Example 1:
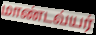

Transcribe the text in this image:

மாண்டவ்யர்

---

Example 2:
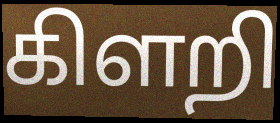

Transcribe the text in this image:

கிளறி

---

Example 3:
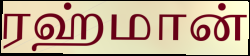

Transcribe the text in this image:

ரஹ்மான்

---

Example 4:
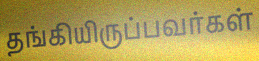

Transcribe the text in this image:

தங்கியிருப்பவர்கள்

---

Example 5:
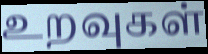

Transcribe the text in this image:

உறவுகள்